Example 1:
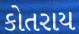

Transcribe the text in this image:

કોતરાય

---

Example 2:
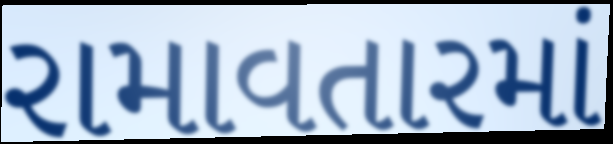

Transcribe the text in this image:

રામાવતારમાં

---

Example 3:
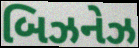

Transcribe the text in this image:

બિઝનેઝ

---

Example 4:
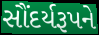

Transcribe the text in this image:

સૌંદર્યરૂપને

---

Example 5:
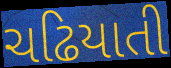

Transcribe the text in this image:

ચઢિયાતી